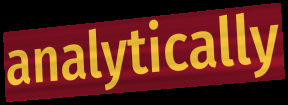
analytically